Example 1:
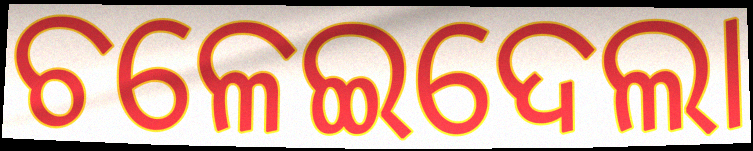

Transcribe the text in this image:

ଚଳେଇଦେଲା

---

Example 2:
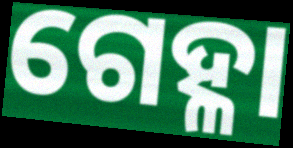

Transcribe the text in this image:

ଗେହ୍ଳା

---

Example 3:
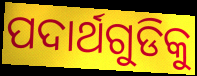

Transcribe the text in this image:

ପଦାର୍ଥଗୁଡିକୁ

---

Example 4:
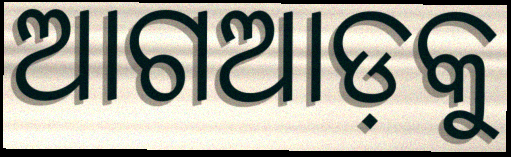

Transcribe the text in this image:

ଆଗଆଡ଼କୁ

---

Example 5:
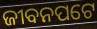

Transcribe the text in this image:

ଜୀବନପଟେ